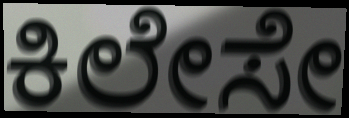
ಕಿಲೇಸೇ